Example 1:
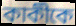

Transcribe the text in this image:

কাকীকে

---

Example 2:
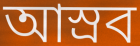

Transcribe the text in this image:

আস্রব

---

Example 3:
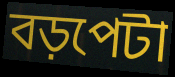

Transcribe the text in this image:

বড়পেটা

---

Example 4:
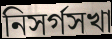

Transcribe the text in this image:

নিসর্গসখা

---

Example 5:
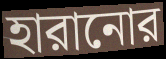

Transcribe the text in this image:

হারানোর